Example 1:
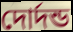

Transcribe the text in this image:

দোর্দন্ড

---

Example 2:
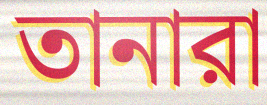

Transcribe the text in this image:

তানারা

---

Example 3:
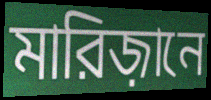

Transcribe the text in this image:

মারিজ়ানে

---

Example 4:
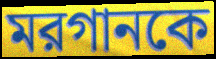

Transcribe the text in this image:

মরগানকে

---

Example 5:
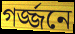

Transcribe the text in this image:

গর্জ্জনে